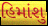
હિમાંશુ